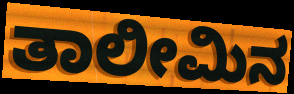
ತಾಲೀಮಿನ